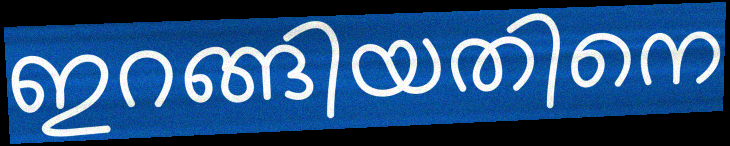
ഇറങ്ങിയതിനെ